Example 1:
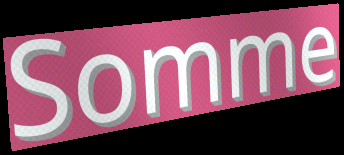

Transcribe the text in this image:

Somme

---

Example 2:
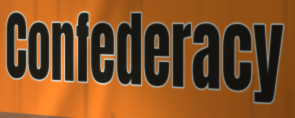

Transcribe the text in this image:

Confederacy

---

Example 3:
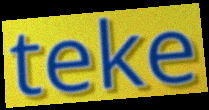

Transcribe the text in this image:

teke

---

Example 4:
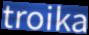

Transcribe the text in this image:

troika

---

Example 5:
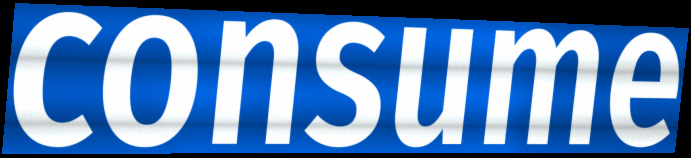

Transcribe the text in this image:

consume